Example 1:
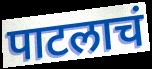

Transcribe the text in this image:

पाटलाचं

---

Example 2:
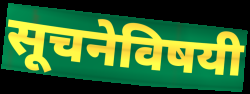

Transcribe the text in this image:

सूचनेविषयी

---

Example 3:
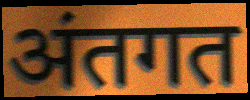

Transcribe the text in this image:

अंतगत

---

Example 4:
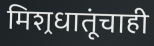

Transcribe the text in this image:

मिश्रधातूंचाही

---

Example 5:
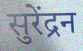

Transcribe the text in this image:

सुरेंद्रन